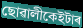
ছোৱালীকেইটাৰ